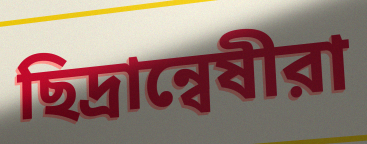
ছিদ্রান্বেষীরা